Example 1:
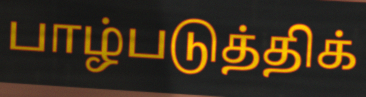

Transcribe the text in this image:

பாழ்படுத்திக்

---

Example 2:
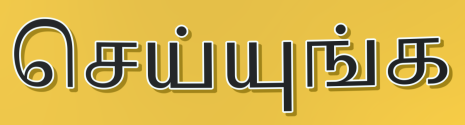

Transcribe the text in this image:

செய்யுங்க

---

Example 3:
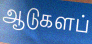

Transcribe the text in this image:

ஆடுகளப்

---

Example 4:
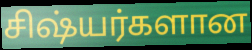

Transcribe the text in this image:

சிஷ்யர்களான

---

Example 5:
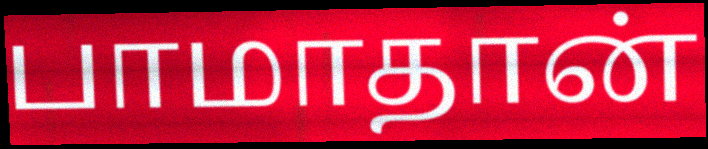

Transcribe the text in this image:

பாமாதான்